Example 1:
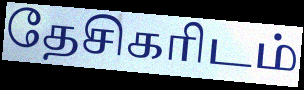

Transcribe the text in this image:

தேசிகரிடம்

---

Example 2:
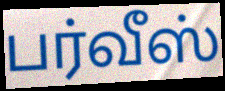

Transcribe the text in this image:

பர்வீஸ்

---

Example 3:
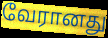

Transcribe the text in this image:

வேரானது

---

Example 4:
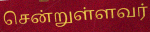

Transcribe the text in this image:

சென்றுள்ளவர்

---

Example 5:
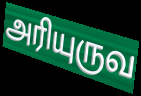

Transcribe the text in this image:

அரியுருவ